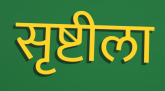
सृष्टीला